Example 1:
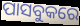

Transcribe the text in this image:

ପାସବୁକରେ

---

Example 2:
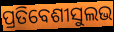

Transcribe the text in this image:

ପ୍ରତିବେଶୀସୁଲଭ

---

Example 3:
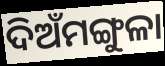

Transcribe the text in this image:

ଦିଅଁମଙ୍ଗୁଳା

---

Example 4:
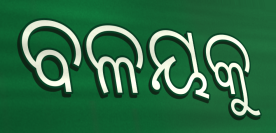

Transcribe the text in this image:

ବଳୟକୁ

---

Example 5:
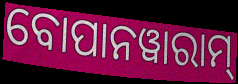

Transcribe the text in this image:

ବୋପାନୱାରାମ୍